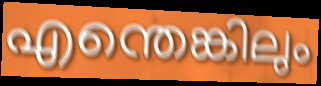
എന്തെങ്കിലും